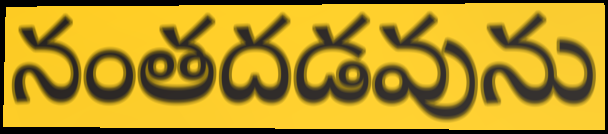
నంతదడవును